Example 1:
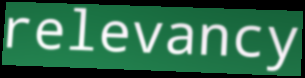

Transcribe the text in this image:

relevancy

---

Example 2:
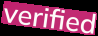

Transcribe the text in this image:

verified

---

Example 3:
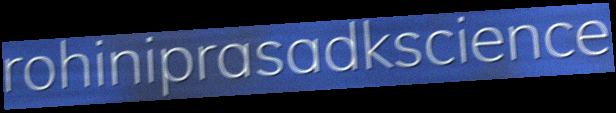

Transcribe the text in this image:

rohiniprasadkscience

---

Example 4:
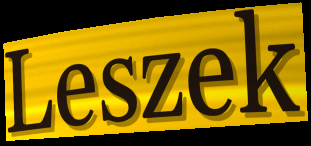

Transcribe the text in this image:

Leszek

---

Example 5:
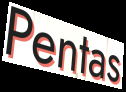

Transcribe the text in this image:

Pentas